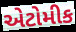
એટોમીક